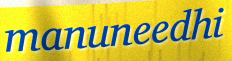
manuneedhi